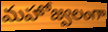
మహోజ్వలంగా